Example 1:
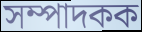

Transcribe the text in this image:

সম্পাদকক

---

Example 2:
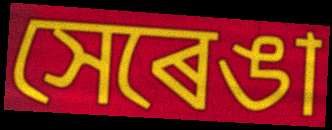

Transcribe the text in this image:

সেৰেঙা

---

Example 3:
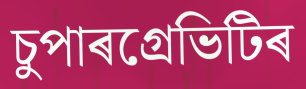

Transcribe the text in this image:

চুপাৰগ্ৰেভিটিৰ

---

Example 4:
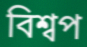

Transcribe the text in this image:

বিশ্বপ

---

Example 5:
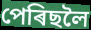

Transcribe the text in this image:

পেৰিছলৈ